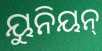
ୟୁନିୟନ୍